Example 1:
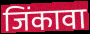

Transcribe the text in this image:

जिंकावा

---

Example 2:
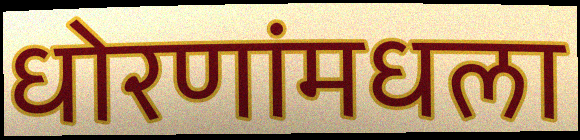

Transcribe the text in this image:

धोरणांमधला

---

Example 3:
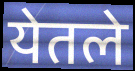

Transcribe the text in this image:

येतले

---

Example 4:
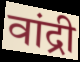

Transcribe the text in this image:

वांद्री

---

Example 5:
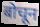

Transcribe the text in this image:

बोचून